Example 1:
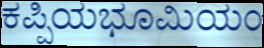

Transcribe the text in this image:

ಕಪ್ಪಿಯಭೂಮಿಯಂ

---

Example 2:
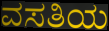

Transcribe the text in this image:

ವಸತಿಯ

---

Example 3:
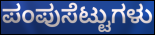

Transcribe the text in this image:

ಪಂಪುಸೆಟ್ಟುಗಳು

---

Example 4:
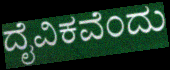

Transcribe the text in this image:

ದೈವಿಕವೆಂದು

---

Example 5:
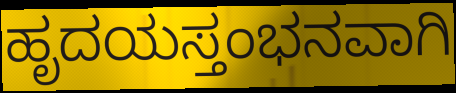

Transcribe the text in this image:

ಹೃದಯಸ್ತಂಭನವಾಗಿ